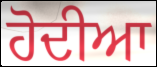
ਹੋਦੀਆ